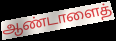
ஆண்டாளைத்